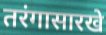
तरंगासारखे